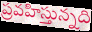
ప్రవహిస్తున్నది